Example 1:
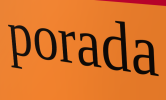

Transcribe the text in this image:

porada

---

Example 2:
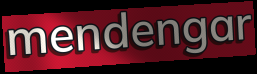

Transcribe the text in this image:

mendengar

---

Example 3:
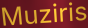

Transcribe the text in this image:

Muziris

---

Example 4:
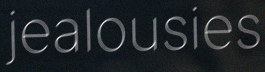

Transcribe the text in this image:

jealousies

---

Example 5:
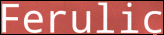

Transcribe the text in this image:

Ferulic